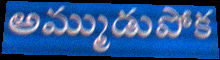
అమ్ముడుపోక